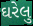
ઘરેલુ